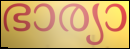
ഭാര്യാ